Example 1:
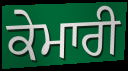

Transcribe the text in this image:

ਕੇਮਾਰੀ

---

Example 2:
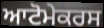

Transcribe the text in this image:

ਆਟੋਮੇਕਰਸ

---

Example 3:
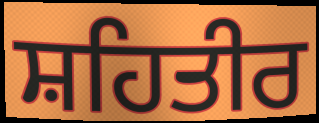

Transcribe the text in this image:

ਸ਼ਹਿਤੀਰ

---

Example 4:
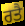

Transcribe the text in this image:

ਰਤੈ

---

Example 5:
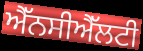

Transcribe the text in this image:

ਐੱਨਸੀਐੱਲਟੀ